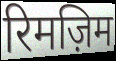
रिमज़िम